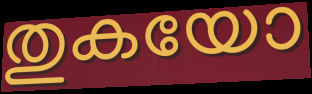
തുകയോ